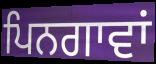
ਪਿਨਗਾਵਾਂ